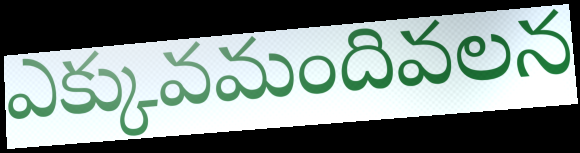
ఎక్కువమందివలన